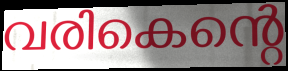
വരികെന്റെ